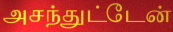
அசந்துட்டேன்